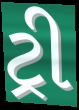
ટ્રી